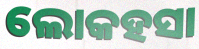
ଲୋକହସା